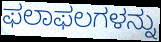
ಫಲಾಫಲಗಳನ್ನು